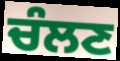
ਚੰਲਣ